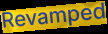
Revamped